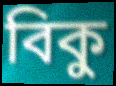
বিকু